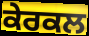
ਕੇਰਕਲ